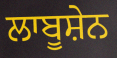
ਲਾਬੂਸ਼ੇਨ